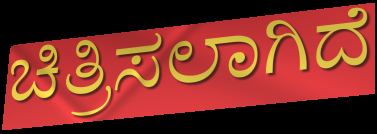
ಚಿತ್ರಿಸಲಾಗಿದೆ